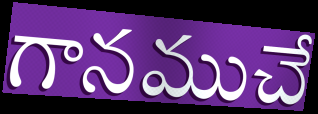
గానముచే